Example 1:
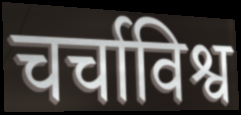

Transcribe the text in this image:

चर्चाविश्व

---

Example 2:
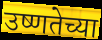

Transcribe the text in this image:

उष्णतेच्या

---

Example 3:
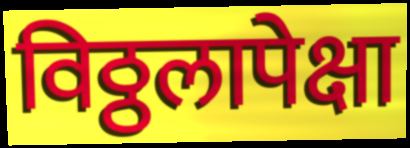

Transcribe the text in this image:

विठ्ठलापेक्षा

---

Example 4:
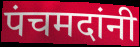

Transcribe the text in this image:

पंचमदांनी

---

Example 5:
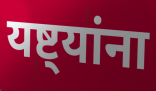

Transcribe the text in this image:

यष्ट्यांना